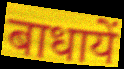
बाधायें